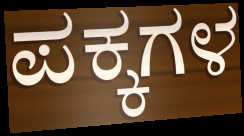
ಪಕ್ಕಗಳ